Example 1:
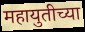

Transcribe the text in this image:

महायुतीच्या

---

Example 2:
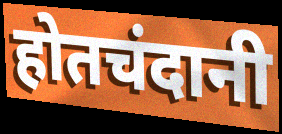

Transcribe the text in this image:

होतचंदानी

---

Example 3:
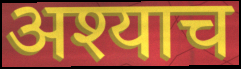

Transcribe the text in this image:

अश्याच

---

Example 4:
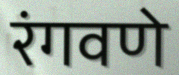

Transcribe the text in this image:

रंगवणे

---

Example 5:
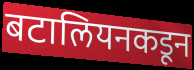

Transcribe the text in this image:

बटालियनकडून